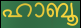
ഹാബൂ